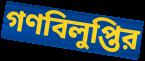
গণবিলুপ্তির